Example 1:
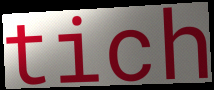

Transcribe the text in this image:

tich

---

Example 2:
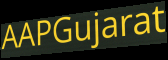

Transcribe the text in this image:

AAPGujarat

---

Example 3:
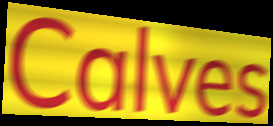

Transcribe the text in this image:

Calves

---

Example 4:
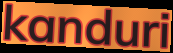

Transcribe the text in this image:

kanduri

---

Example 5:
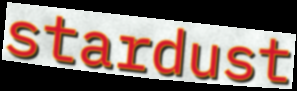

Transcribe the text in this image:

stardust